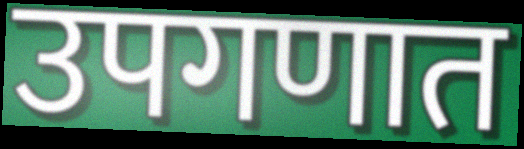
उपगणात